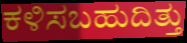
ಕಳಿಸಬಹುದಿತ್ತು